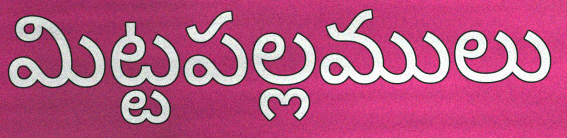
మిట్టపల్లములు